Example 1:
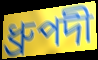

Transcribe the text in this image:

ধ্ৰুপদী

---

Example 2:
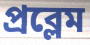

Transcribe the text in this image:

প্ৰব্লেম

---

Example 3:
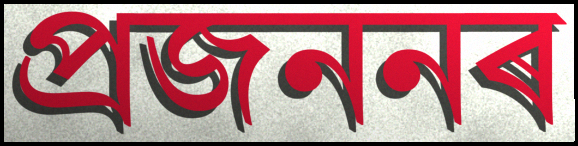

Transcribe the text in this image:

প্ৰজননৰ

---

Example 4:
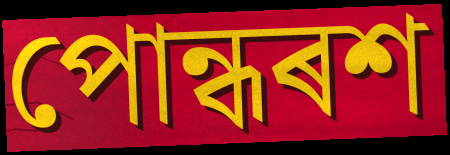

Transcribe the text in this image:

পোন্ধৰশ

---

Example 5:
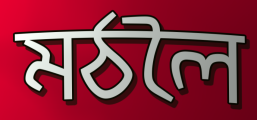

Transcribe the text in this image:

মঠলৈ